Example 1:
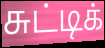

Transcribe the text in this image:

சுட்டிக்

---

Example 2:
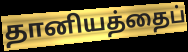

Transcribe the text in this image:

தானியத்தைப்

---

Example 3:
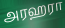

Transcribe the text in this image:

அரஹரா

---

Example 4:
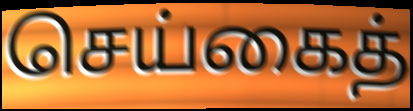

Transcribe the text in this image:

செய்கைத்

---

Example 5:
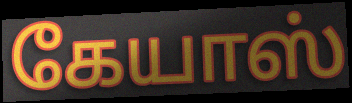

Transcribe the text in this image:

கேயாஸ்